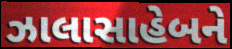
ઝાલાસાહેબને